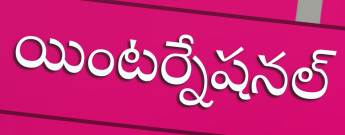
యింటర్నేషనల్